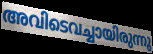
അവിടെവച്ചായിരുന്നു